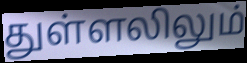
துள்ளலிலும்